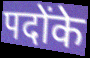
पदोंके